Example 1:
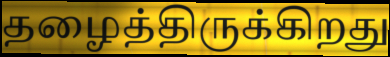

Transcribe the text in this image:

தழைத்திருக்கிறது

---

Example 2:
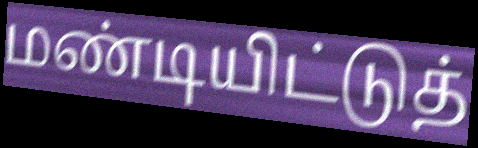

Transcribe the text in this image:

மண்டியிட்டுத்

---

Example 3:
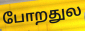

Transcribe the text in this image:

போறதுல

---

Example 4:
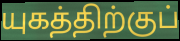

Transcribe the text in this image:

யுகத்திற்குப்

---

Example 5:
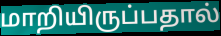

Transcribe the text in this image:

மாறியிருப்பதால்